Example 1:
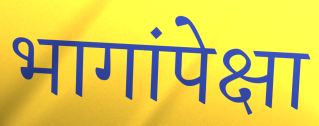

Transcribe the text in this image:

भागांपेक्षा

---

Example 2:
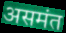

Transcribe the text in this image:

असमंत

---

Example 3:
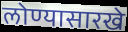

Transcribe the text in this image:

लोण्यासारखे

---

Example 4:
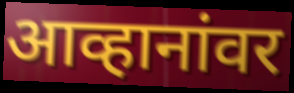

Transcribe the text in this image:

आव्हानांवर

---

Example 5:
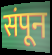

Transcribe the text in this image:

संपून